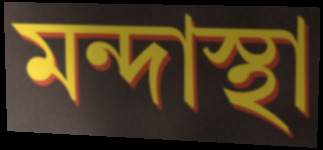
মন্দাস্থা